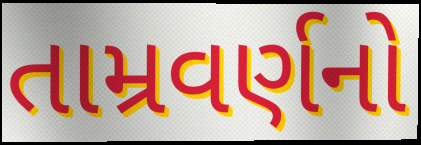
તામ્રવર્ણનો